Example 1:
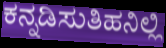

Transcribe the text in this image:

ಕನ್ನಡಿಸುತಿಹನಿಲ್ಲಿ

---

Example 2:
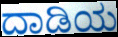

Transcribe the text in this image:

ದಾಡಿಯ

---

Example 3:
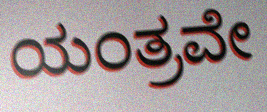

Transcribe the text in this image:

ಯಂತ್ರವೇ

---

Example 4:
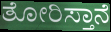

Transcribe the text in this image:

ತೋರಿಸ್ತಾನೆ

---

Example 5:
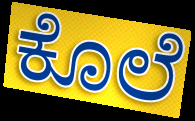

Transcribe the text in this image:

ಕೊಲೆ